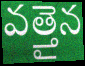
వత్తైన